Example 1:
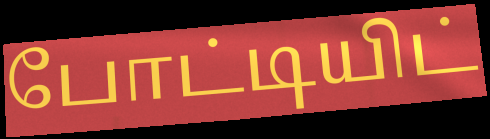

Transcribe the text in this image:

போட்டியிட்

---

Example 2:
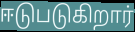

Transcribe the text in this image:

ஈடுபடுகிறார்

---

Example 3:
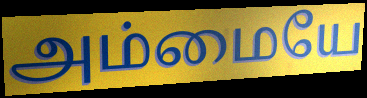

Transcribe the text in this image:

அம்மையே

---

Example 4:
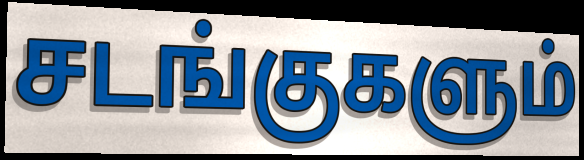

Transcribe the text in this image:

சடங்குகளும்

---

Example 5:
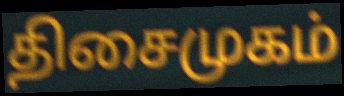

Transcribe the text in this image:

திசைமுகம்